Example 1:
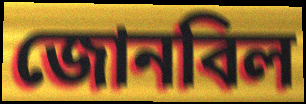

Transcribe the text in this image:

জোনবিল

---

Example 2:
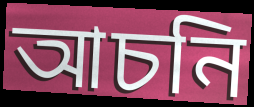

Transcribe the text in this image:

আচনি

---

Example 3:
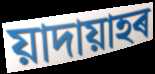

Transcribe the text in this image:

য়াদায়াহৰ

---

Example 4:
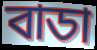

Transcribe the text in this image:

বাডা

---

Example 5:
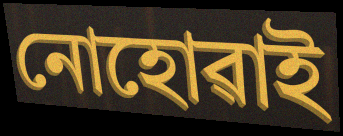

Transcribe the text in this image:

নোহোৱাই